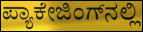
ಪ್ಯಾಕೇಜಿಂಗ್‌ನಲ್ಲಿ